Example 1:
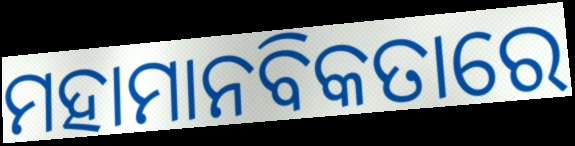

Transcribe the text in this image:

ମହାମାନବିକତାରେ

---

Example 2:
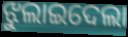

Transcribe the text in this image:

ଝୁଲାଇଦେଲା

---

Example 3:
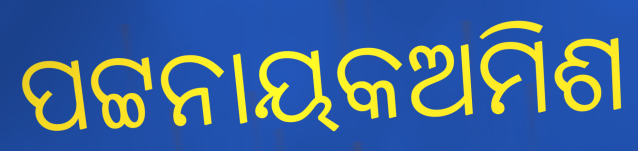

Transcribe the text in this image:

ପଟ୍ଟନାୟକଅମିଶ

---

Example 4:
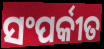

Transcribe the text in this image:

ସଂପର୍କୀତ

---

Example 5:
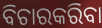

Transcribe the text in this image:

ବିଚାରକରିବା